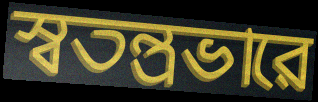
স্বতন্ত্ৰভাৱে